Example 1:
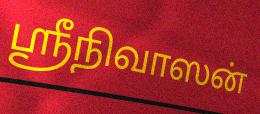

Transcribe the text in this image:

ஸ்ரீநிவாஸன்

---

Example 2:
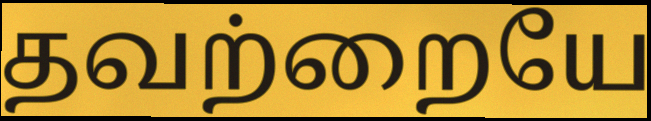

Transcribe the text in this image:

தவற்றையே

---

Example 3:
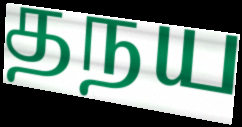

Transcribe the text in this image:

தநய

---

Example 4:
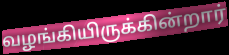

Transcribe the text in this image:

வழங்கியிருக்கின்றார்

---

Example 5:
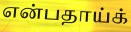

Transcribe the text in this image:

என்பதாய்க்